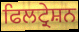
ਫਿਲਟ੍ਰੇਸ਼ਨ